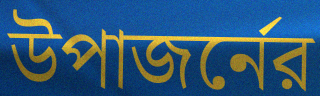
উপাজর্নের